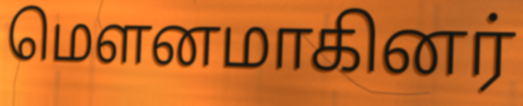
மௌனமாகினர்